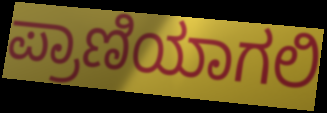
ಪ್ರಾಣಿಯಾಗಲಿ